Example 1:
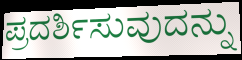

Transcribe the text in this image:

ಪ್ರದರ್ಶಿಸುವುದನ್ನು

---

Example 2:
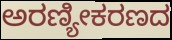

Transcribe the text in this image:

ಅರಣ್ಯೀಕರಣದ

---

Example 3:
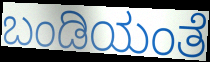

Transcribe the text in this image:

ಬಂಡಿಯಂತೆ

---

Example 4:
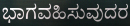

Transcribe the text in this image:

ಭಾಗವಹಿಸುವುದರ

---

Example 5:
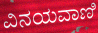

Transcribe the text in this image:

ವಿನಯವಾಣಿ